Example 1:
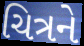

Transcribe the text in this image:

ચિત્રને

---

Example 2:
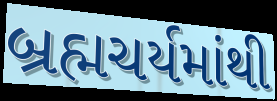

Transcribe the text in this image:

બ્રહ્મચર્યમાંથી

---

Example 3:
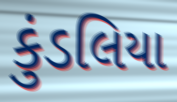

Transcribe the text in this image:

કુંડલિયા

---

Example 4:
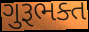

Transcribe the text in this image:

ગુરૂભક્ત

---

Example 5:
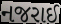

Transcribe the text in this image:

નજરાઈ